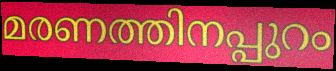
മരണത്തിനപ്പുറം